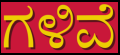
ಗಳಿವೆ